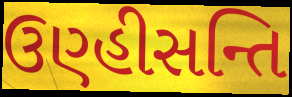
ઉણ્હીસન્તિ